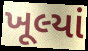
ખૂલ્યાં